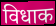
विधाक